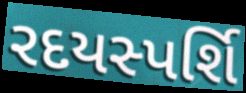
રદયસ્પર્શિ